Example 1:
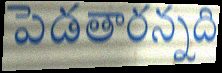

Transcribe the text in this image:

పెడతారన్నది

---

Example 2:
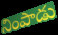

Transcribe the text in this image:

నింపాడు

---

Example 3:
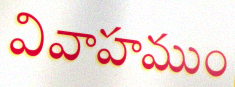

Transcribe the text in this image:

వివాహముం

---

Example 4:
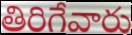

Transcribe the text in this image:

తిరిగేవారు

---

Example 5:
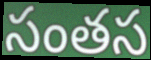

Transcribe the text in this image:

సంతస